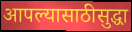
आपल्यासाठीसुद्धा